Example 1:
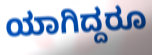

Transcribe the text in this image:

ಯಾಗಿದ್ದರೂ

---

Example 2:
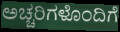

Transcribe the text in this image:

ಅಚ್ಚರಿಗಳೊಂದಿಗೆ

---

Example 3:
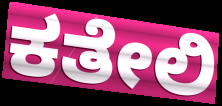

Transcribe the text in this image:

ಕತೇಲಿ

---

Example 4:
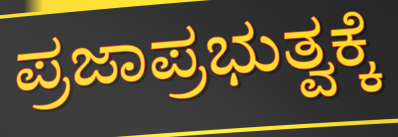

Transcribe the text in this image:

ಪ್ರಜಾಪ್ರಭುತ್ವಕ್ಕೆ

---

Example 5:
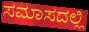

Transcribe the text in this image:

ಸಮಾಸದಲ್ಲಿ